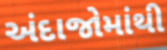
અંદાજોમાંથી